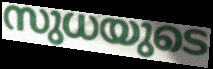
സുധയുടെ